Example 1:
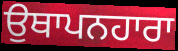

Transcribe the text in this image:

ਉਥਾਪਨਹਾਰਾ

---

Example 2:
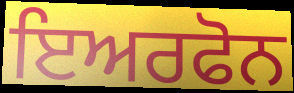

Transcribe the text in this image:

ਇਅਰਫੋਨ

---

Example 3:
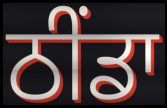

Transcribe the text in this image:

ਠੀਂਡਾ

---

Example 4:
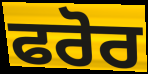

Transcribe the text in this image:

ਫਰੋਰ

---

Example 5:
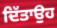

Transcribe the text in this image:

ਦਿੱਤਾਉਹ